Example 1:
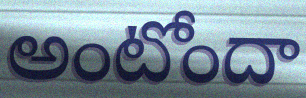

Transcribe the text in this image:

అంటోందా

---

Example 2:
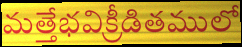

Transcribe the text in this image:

మత్తేభవిక్రీడితములో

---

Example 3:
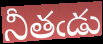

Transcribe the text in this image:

నీతఁడు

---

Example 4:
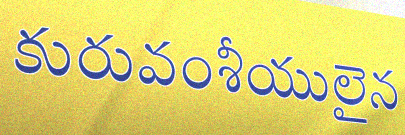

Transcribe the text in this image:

కురువంశీయులైన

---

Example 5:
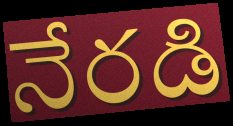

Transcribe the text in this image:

నేరడి